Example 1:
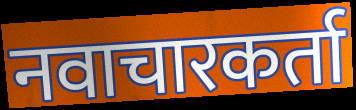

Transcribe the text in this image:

नवाचारकर्ता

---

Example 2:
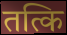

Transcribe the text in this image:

तत्कि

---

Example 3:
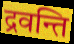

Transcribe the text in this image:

द्रवन्ति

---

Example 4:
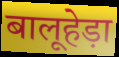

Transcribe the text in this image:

बालूहेड़ा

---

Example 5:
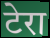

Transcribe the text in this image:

टेरा